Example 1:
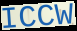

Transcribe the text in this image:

ICCW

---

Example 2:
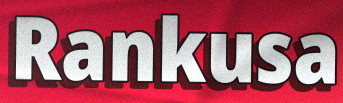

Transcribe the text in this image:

Rankusa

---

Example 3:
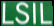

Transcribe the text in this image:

LSIL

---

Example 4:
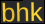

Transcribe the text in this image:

bhk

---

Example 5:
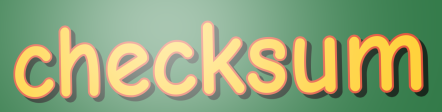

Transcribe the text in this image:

checksum